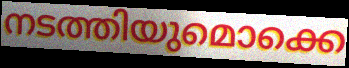
നടത്തിയുമൊക്കെ